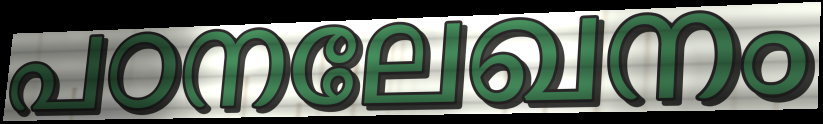
പഠനലേഖനം